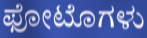
ಫೋಟೊಗಳು